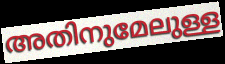
അതിനുമേലുള്ള